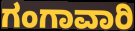
ಗಂಗಾವಾರಿ